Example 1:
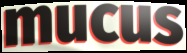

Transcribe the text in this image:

mucus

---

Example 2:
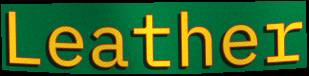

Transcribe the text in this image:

Leather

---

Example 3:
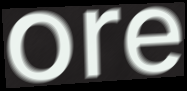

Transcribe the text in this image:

ore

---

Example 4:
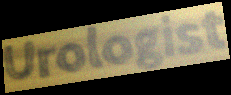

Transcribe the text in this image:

Urologist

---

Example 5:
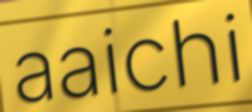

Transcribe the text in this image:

aaichi